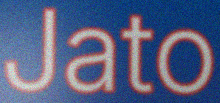
Jato